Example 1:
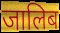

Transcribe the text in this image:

जालिब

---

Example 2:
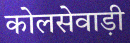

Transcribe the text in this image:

कोलसेवाड़ी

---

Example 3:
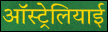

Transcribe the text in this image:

ऑस्‍ट्रेलियाई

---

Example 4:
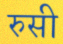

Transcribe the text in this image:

रुसी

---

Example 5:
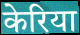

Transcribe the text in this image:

केरिया